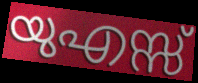
യുഎസ്സ്